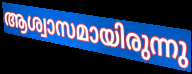
ആശ്വാസമായിരുന്നു